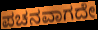
ಪಚನವಾಗದೇ